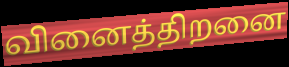
வினைத்திறனை